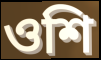
ওশি